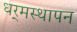
धर्मस्थापन